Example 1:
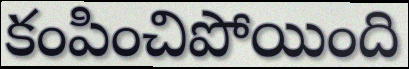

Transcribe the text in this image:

కంపించిపోయింది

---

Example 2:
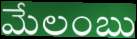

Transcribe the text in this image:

మేలంబు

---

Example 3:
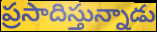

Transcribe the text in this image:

ప్రసాదిస్తున్నాడు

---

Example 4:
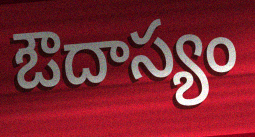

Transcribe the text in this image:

ఔదాస్యం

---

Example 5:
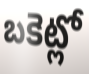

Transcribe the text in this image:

బకెట్లో